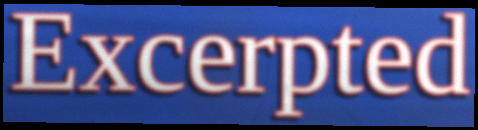
Excerpted